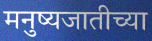
मनुष्यजातीच्या